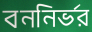
বননির্ভর